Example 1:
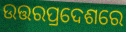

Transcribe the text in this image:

ଉତ୍ତରପ୍ରଦେଶରେ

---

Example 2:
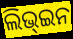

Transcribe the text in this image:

ଲିଭ୍ଇନ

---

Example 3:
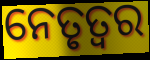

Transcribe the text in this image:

ନେତୃତ୍ଵର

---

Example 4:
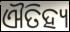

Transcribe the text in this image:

ଐତିହ୍ୟ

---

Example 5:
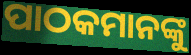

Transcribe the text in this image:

ପାଠକମାନଙ୍କୁ